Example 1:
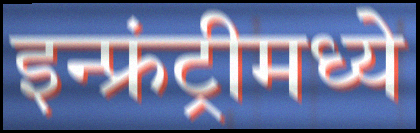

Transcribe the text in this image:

इन्फ्रंट्रीमध्ये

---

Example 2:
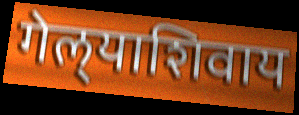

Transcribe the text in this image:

गेल्याशिवाय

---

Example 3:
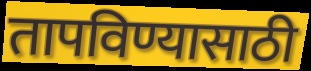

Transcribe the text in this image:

तापविण्यासाठी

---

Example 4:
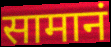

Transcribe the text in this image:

सामानं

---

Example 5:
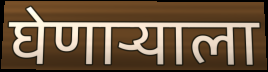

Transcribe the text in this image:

घेणार्‍याला